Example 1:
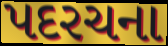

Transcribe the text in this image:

પદરચના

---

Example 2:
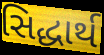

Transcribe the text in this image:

સિદ્ધાર્થ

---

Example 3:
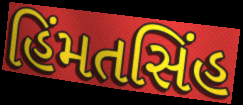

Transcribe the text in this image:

હિંમતસિંહ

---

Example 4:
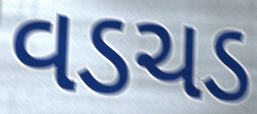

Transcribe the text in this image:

વડચડ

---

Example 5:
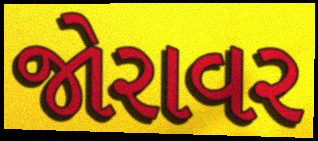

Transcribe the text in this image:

જોરાવર